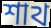
শাথ